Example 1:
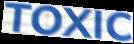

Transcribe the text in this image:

TOXIC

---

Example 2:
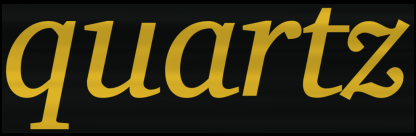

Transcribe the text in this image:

quartz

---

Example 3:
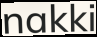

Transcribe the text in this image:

nakki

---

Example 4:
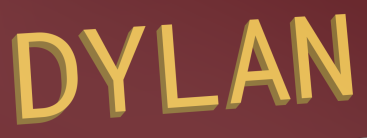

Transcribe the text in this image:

DYLAN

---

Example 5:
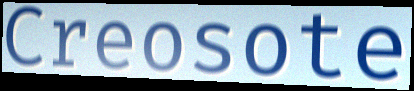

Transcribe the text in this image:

Creosote